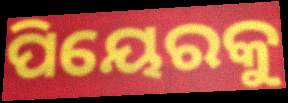
ପିୟେରକୁ